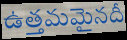
ఉత్తమమైనదీ